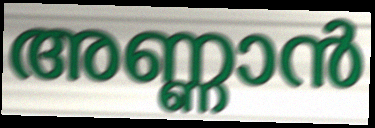
അണ്ണാൻ